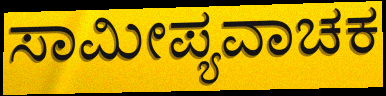
ಸಾಮೀಪ್ಯವಾಚಕ